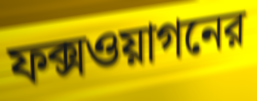
ফক্সওয়াগনের